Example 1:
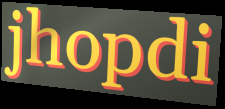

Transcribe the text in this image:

jhopdi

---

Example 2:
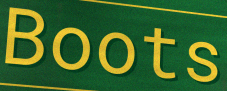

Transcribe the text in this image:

Boots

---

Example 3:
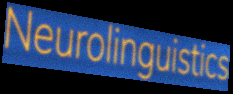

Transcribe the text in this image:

Neurolinguistics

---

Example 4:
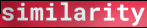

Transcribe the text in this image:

similarity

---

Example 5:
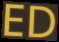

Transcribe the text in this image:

ED